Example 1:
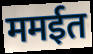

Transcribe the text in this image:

ममईत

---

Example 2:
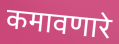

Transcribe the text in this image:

कमावणारे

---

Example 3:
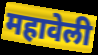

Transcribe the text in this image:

महावेली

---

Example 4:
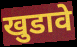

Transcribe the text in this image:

खुडावे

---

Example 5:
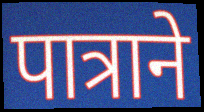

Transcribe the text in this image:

पात्राने